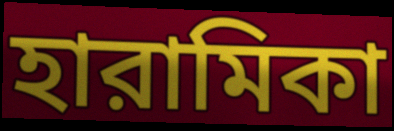
হারামিকা